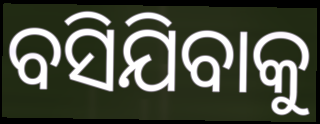
ବସିଯିବାକୁ